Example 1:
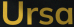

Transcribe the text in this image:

Ursa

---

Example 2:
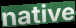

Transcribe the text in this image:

native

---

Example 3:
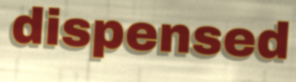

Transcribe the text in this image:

dispensed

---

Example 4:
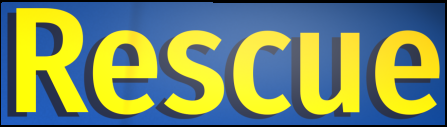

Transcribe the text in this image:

Rescue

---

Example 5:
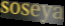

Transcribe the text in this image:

soseya